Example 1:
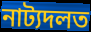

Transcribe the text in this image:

নাট্যদলত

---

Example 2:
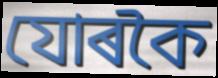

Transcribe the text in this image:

যোৰকৈ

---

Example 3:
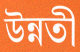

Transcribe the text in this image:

উন্নতী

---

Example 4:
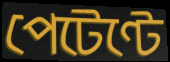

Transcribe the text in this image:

পেটেণ্টে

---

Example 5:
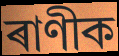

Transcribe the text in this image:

ৰাণীক